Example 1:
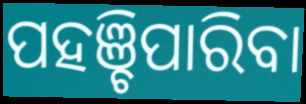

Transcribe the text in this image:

ପହଞ୍ଚିପାରିବା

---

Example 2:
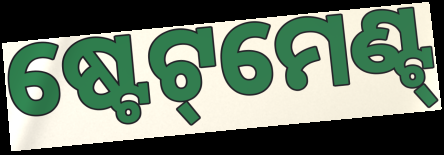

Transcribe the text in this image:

ଷ୍ଟେଟ୍‌ମେଣ୍ଟ୍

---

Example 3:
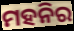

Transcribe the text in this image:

ମହନିର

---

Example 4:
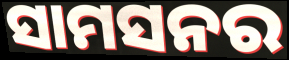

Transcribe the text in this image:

ସାମସନର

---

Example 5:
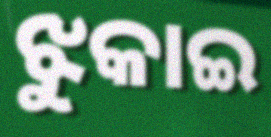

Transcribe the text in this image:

ଝୁକାଇ